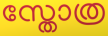
സ്തോത്ര